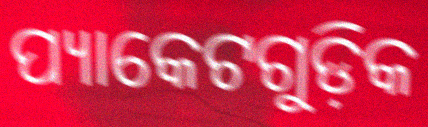
ପ୍ୟାକେଟଗୁଡ଼ିକ